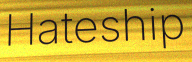
Hateship